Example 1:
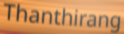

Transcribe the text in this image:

Thanthirang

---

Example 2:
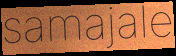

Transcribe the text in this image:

samajale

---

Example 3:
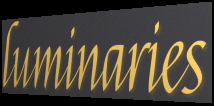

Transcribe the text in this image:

luminaries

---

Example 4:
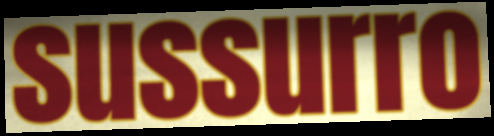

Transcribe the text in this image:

sussurro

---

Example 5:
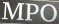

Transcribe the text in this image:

MPO